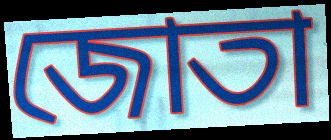
জোতা